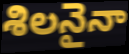
శిలనైనా